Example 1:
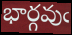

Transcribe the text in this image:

భార్గవుఁ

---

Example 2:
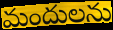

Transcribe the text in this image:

మందులను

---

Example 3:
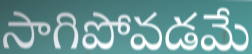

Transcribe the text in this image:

సాగిపోవడమే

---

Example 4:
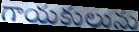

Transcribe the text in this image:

గాయకులును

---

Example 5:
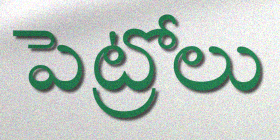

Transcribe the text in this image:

పెట్రోలు